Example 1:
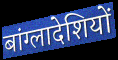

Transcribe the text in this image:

बांग्लादेशियों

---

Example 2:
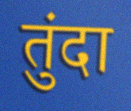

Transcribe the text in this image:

तुंदा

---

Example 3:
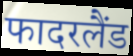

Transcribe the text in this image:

फादरलैंड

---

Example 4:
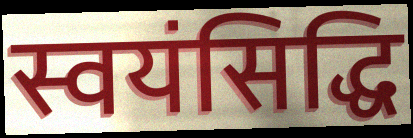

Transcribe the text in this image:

स्वयंसिद्धि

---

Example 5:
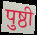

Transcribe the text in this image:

पुष्ठी